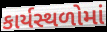
કાર્યસ્થળોમાં